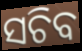
ସଚିବ